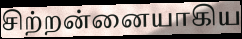
சிற்றன்னையாகிய